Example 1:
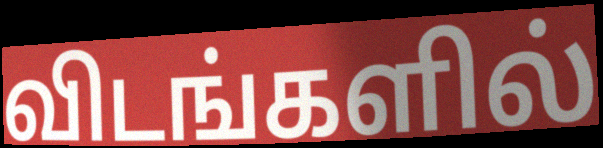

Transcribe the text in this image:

விடங்களில்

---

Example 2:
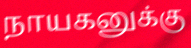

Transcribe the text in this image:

நாயகனுக்கு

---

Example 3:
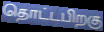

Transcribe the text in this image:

தொட்டபிறகு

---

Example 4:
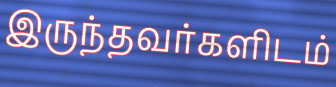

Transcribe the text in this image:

இருந்தவர்களிடம்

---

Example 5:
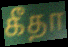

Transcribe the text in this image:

கீதா